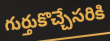
గుర్తుకొచ్చేసరికి